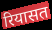
रियासत